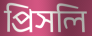
প্রিসলি